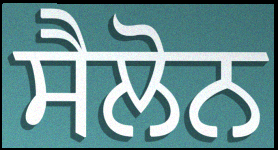
ਸੈਲੋਨ